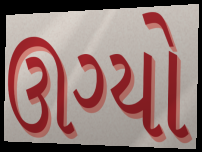
ઊગ્યો